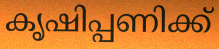
കൃഷിപ്പണിക്ക്